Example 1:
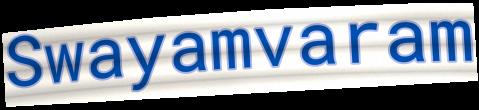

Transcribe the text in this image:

Swayamvaram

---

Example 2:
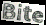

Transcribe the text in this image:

Bite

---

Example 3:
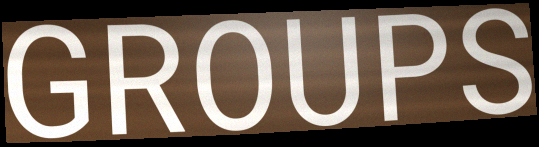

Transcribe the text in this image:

GROUPS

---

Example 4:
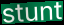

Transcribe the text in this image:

stunt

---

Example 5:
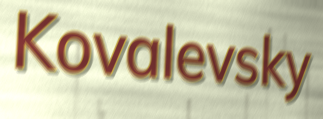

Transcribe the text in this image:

Kovalevsky